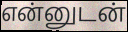
என்னுடன்